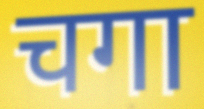
चगा